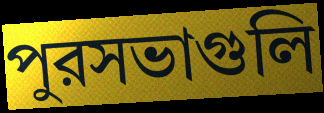
পুরসভাগুলি